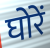
घोरें